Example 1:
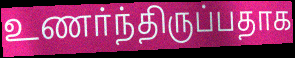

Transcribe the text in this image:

உணர்ந்திருப்பதாக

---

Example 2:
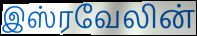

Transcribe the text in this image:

இஸ்ரவேலின்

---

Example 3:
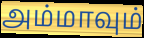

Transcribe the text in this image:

அம்மாவும்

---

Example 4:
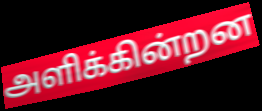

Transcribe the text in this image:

அளிக்கின்றன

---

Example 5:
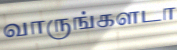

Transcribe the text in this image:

வாருங்களடா